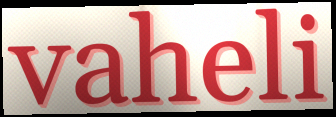
vaheli